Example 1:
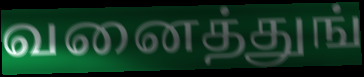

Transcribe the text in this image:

வனைத்துங்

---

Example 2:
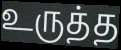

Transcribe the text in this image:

உருத்த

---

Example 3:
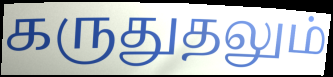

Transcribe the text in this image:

கருதுதலும்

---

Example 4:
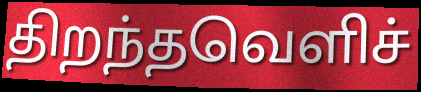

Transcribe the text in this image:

திறந்தவெளிச்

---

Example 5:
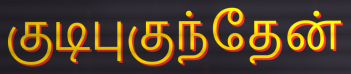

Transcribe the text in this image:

குடிபுகுந்தேன்